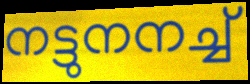
നട്ടുനനച്ച്